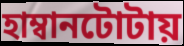
হাম্বানটোটায়